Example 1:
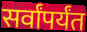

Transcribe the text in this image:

सर्वांपर्यंत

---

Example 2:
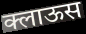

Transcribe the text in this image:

क्लाऊस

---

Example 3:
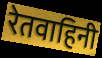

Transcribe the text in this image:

रेतवाहिनी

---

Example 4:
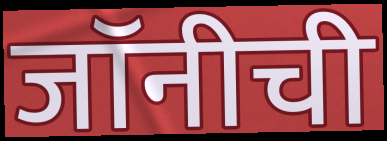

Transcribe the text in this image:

जॉनीची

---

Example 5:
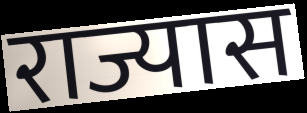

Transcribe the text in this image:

राज्यास